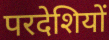
परदेशियों